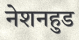
नेशनहुड